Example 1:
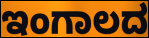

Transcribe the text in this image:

ಇಂಗಾಲದ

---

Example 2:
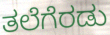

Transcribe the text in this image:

ತಲೆಗೆರಡು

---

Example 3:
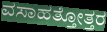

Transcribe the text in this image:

ವಸಾಹತ್ತೋತ್ತರ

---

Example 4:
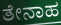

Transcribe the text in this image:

ತೇನಾಹ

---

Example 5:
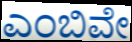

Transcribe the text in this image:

ಎಂಬಿವೇ